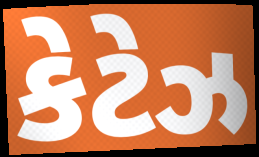
કેટેઝ